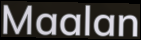
Maalan